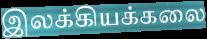
இலக்கியக்கலை